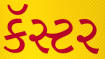
કૅસ્ટર